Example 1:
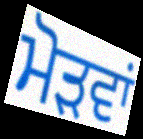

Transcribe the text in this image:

ਮੋੜਵਾਂ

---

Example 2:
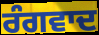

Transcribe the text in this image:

ਰੰਗਵਾਦ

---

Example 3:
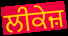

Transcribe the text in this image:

ਲੀਕੇਜ਼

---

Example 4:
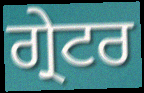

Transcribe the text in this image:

ਗ੍ਰੇਟਰ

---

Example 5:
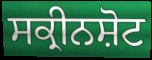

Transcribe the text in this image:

ਸਕ੍ਰੀਨਸ਼ੋਟ